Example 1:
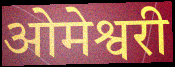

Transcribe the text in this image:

ओमेश्वरी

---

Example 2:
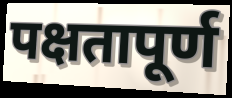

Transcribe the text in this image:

पक्षतापूर्ण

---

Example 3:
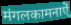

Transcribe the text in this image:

मंगलकामनाऐं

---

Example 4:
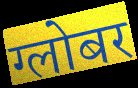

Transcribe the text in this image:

ग्लोबर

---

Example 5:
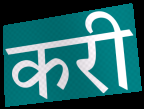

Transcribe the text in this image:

करी